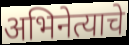
अभिनेत्याचे